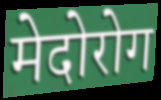
मेदोरोग